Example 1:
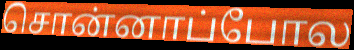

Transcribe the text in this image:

சொன்னாப்போல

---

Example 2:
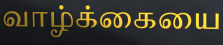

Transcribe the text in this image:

வாழ்க்கையை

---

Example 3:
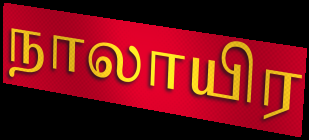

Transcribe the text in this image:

நாலாயிர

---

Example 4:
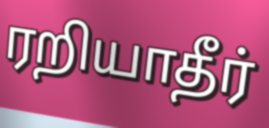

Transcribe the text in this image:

ரறியாதீர்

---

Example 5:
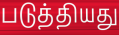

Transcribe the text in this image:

படுத்தியது